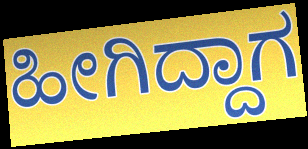
ಹೀಗಿದ್ದಾಗ